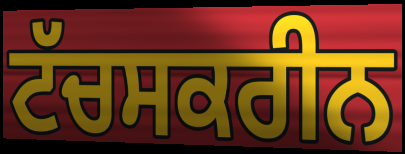
ਟੱਚਸਕਰੀਨ